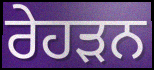
ਰੇਹੜਨ